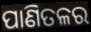
ପାଣିତଳର